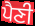
ਪੈਣੀ